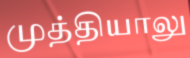
முத்தியாலு